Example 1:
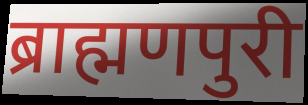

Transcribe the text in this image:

ब्राह्मणपुरी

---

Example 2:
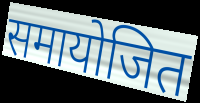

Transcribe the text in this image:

समायोजित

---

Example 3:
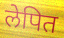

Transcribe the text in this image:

लेपित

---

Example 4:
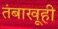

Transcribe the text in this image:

तंबाखूही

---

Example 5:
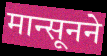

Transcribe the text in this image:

मान्सूनने